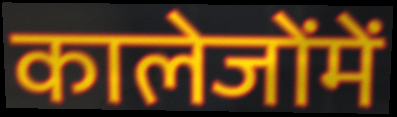
कालेजोंमें